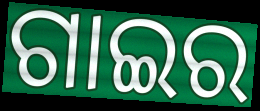
ଗାଇର